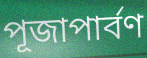
পূজাপার্বণ